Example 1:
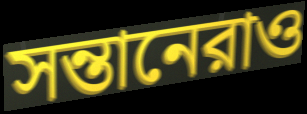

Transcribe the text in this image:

সন্তানেরাও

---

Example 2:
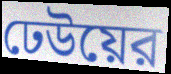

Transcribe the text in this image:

ঢেউয়ের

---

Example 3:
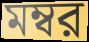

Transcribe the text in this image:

মম্বর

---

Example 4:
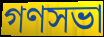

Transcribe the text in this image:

গণসভা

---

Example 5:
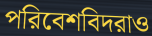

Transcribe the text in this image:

পরিবেশবিদরাও